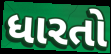
ધારતો